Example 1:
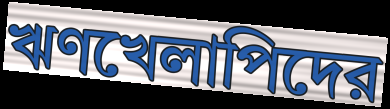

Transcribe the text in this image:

ঋণখেলাপিদের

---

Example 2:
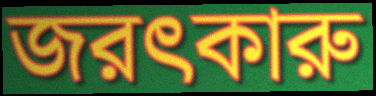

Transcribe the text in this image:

জরৎকারু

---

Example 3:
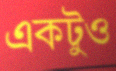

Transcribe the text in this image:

একটুও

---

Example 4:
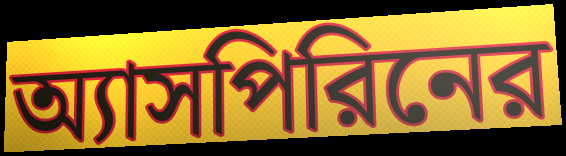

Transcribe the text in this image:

অ্যাসপিরিনের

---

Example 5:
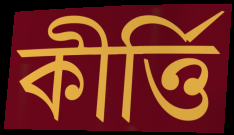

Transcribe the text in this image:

কীর্ত্তি